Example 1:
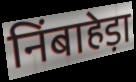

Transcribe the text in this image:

निंबाहेड़ा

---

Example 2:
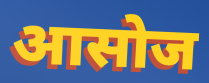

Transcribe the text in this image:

आसोज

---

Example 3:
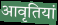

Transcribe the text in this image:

आवृतियां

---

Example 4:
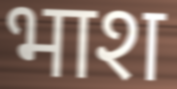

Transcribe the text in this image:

भाश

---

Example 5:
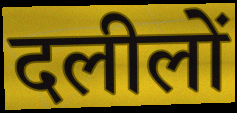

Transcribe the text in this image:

दलीलों